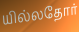
யில்லதோர்